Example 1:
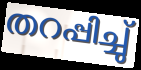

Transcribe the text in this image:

തറപ്പിച്ചു്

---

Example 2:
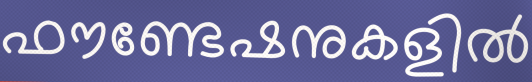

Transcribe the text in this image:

ഫൗണ്ടേഷനുകളിൽ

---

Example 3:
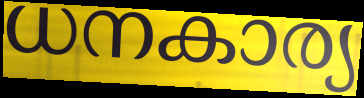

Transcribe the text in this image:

ധനകാര്യ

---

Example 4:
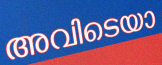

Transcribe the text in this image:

അവിടെയാ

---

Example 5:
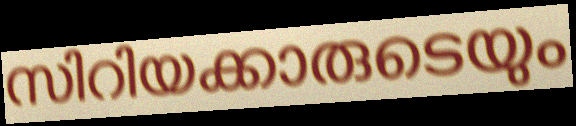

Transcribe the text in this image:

സിറിയക്കാരുടെയും